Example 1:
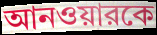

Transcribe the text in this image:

আনওয়ারকে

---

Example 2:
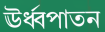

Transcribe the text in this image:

ঊর্ধ্বপাতন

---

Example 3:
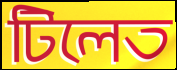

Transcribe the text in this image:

টিলেত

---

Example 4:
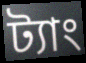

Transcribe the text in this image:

ট্যাং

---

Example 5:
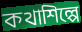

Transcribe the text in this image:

কথাশিল্পে